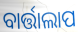
ବାର୍ତ୍ତାଲାପ